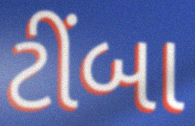
ટીંબા